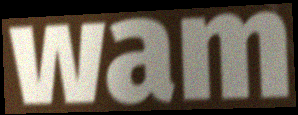
wam